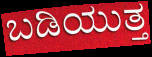
ಬಡಿಯುತ್ತ